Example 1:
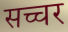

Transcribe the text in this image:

सच्चर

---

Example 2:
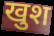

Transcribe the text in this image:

खुश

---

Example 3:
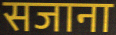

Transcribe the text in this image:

सजाना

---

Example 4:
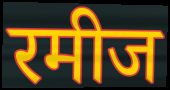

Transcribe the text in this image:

रमीज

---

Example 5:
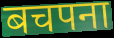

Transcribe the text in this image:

बचपना